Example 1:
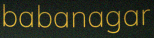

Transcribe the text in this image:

babanagar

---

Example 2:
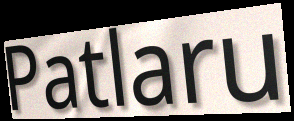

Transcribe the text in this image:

Patlaru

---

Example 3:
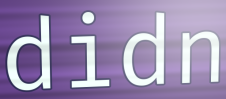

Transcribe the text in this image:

didn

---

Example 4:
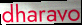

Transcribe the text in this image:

dharavo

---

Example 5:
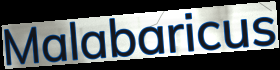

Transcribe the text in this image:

Malabaricus